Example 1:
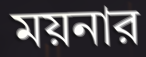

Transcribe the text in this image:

ময়নার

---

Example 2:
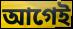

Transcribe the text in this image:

আগেই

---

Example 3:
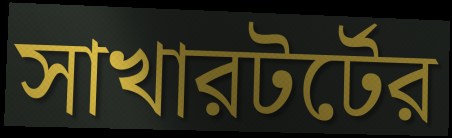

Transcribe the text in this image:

সাখারটর্টের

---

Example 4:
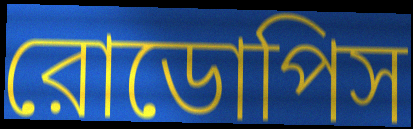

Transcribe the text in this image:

রোডোপিস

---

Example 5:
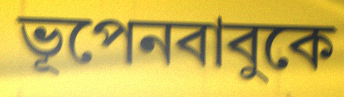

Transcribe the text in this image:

ভূপেনবাবুকে